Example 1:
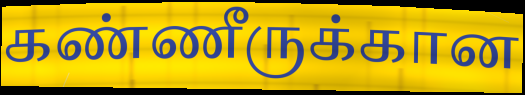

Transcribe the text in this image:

கண்ணீருக்கான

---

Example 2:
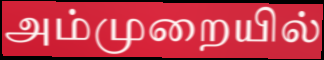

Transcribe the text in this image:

அம்முறையில்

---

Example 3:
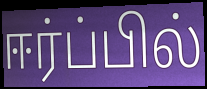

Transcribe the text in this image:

ஈர்ப்பில்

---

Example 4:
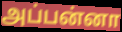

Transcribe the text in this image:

அப்பன்னா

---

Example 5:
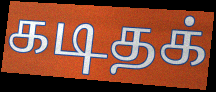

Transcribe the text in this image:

கடிதக்